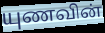
யுணவின்